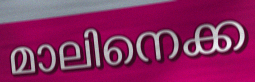
മാലിനെക്ക